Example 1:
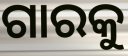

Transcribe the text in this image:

ଗାରକୁ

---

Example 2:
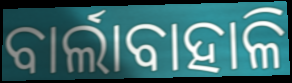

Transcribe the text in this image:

ବାର୍ଲାବାହାଳି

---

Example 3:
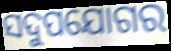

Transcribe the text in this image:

ସଦୁପଯୋଗର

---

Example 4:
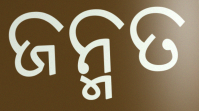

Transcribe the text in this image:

ଜନ୍ମତ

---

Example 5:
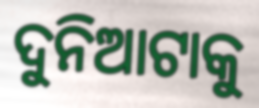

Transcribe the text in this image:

ଦୁନିଆଟାକୁ